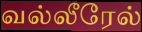
வல்லீரேல்